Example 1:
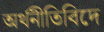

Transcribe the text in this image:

অৰ্থনীতিবিদে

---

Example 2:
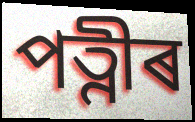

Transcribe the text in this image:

পত্নীৰ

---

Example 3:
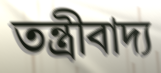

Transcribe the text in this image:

তন্ত্ৰীবাদ্য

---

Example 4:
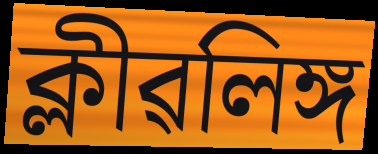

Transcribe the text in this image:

ক্লীৱলিঙ্গ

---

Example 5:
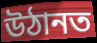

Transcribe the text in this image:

উঠানত